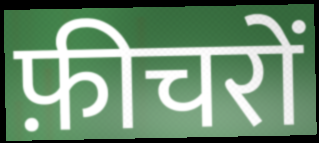
फ़ीचरों